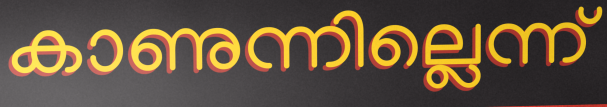
കാണുന്നില്ലെന്ന്